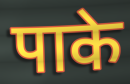
पाके